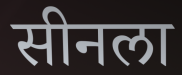
सीनला